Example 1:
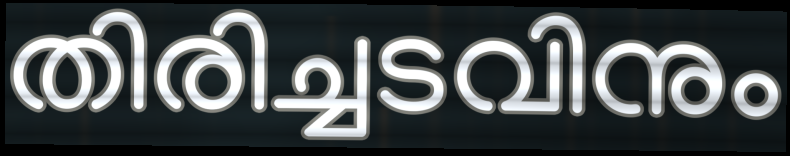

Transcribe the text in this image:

തിരിച്ചടവിനും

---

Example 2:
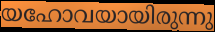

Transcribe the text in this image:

യഹോവയായിരുന്നു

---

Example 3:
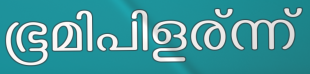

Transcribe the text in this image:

ഭൂമിപിളര്ന്ന്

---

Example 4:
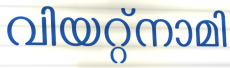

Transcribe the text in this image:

വിയറ്റ്നാമി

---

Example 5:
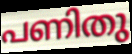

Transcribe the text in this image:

പണിതു